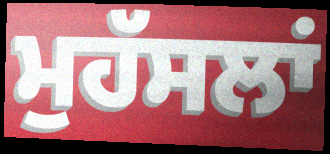
ਮੁਹੱਸਲਾਂ